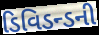
ડિવિડન્ડની